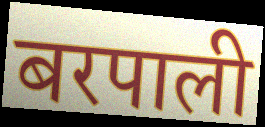
बरपाली